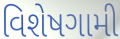
વિશેષગામી